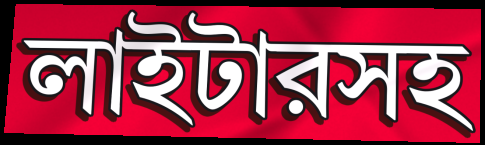
লাইটারসহ